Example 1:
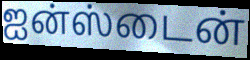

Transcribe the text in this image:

ஐன்ஸ்டைன்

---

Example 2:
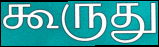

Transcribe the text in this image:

கூருது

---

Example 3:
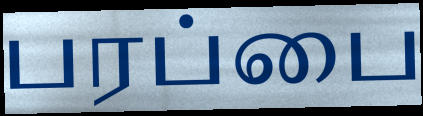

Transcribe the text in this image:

பரப்பை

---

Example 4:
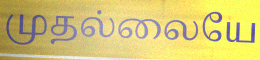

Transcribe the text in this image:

முதல்லையே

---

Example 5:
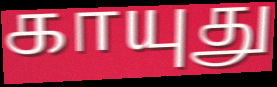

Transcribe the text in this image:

காயுது